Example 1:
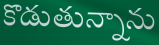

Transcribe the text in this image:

కొడుతున్నాను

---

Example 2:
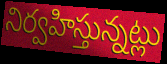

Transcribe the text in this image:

నిర్వహిస్తున్నట్లు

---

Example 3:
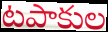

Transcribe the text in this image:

టపాకుల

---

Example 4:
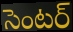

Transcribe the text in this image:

సెంటర్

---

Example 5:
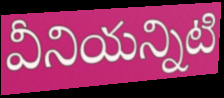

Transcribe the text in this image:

వీనియన్నిటి